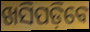
ଖସିପଡ଼ିବେ